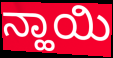
ನ್ಹಾಯಿ